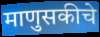
माणुसकीचे